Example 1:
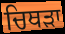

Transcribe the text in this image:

ਚਿਥੜਾ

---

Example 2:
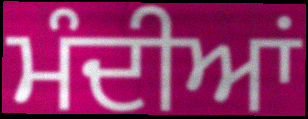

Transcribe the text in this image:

ਮੰਦੀਆਂ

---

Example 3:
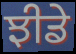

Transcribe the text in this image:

ਝੀਡੇ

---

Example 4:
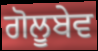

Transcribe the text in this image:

ਗੋਲੂਬੇਵ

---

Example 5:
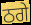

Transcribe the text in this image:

ਠਗੇ